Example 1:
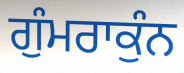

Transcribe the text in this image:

ਗੁੰਮਰਾਕੁੰਨ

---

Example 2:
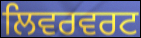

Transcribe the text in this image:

ਲਿਵਰਵਰਟ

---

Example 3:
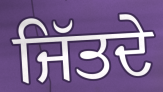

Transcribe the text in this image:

ਜਿੱਤਦੇ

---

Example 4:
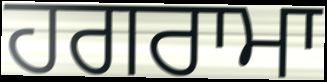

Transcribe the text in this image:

ਹਗਰਾਮਾ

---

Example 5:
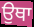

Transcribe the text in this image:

ਉਥਾ